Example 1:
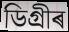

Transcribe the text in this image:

ডিগ্ৰীৰ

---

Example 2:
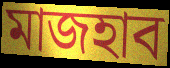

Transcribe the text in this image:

মাজহাব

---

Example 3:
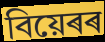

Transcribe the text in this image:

বিয়েৰৰ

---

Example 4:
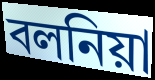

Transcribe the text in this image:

বলনিয়া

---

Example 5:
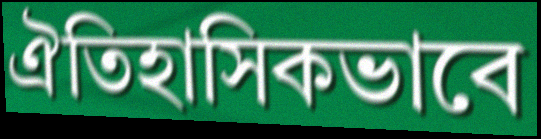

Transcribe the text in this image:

ঐতিহাসিকভাবে